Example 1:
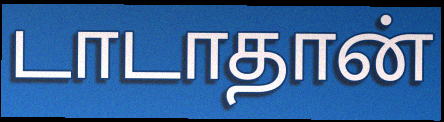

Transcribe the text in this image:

டாடாதான்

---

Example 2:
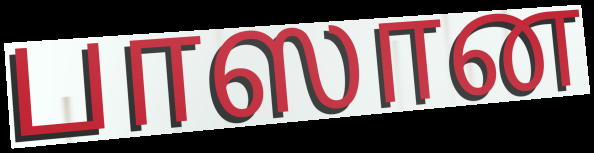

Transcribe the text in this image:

பாஸான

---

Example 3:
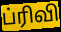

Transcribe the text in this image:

ப்ரிவி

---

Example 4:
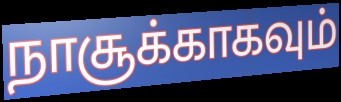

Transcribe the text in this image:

நாசூக்காகவும்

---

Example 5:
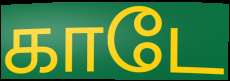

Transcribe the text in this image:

காடே